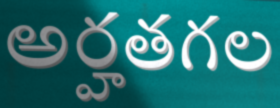
అర్హతగల